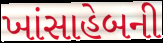
ખાંસાહેબની